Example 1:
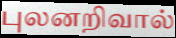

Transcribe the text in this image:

புலனறிவால்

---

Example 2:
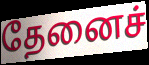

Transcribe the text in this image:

தேனைச்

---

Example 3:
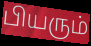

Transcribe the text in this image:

பியரும்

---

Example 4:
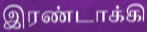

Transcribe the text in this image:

இரண்டாக்கி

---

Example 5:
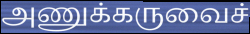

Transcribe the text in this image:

அணுக்கருவைச்